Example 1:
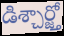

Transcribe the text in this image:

డిశ్చార్జ్తో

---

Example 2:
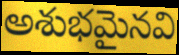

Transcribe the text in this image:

అశుభమైనవి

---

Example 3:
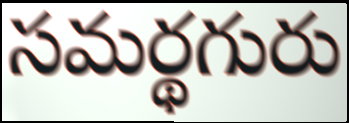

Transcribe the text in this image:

సమర్థగురు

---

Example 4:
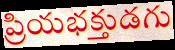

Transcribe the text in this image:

ప్రియభక్తుడగు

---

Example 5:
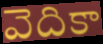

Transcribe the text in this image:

వెదికా